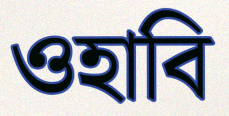
ওহাবি